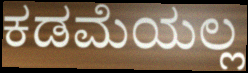
ಕಡಮೆಯಲ್ಲ